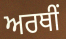
ਅਰਥੀਂ